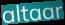
altaar